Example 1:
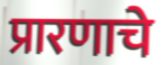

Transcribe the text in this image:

प्रारणाचे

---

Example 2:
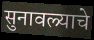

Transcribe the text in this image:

सुनावल्याचे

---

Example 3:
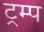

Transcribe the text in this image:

ट्रम्‍प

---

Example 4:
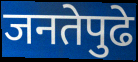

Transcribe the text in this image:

जनतेपुढे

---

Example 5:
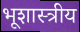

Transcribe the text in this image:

भूशास्त्रीय